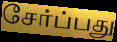
சேர்ப்பது